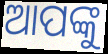
ଆପଙ୍କୁ